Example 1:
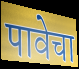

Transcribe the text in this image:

पावेचा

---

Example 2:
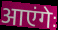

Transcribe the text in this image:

आएंगेः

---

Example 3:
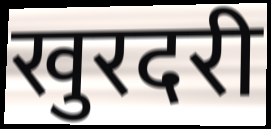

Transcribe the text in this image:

खुरदरी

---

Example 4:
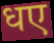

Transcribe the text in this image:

धए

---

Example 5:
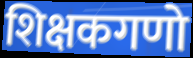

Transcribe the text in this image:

शिक्षकगणो